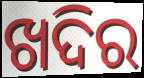
ଖଦିର